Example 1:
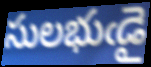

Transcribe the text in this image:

సులభుఁడై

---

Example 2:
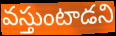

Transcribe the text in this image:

వస్తుంటాడని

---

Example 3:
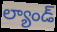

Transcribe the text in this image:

ల్యాండ్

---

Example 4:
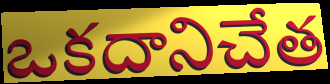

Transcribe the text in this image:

ఒకదానిచేత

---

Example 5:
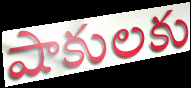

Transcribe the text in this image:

షాకులకు